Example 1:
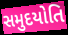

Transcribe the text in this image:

સમુદયોતિ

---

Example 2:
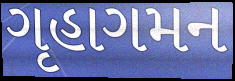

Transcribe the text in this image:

ગૃહાગમન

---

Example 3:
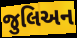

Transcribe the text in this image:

જુલિઅન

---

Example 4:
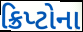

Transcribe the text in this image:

ક્રિપ્ટોના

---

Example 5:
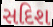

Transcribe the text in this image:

સદિશ